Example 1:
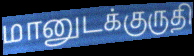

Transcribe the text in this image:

மானுடக்குருதி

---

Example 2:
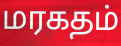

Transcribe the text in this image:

மரகதம்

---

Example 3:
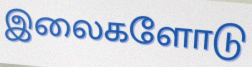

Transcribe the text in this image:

இலைகளோடு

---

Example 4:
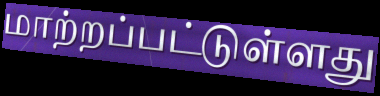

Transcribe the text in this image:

மாற்றப்பட்டுள்ளது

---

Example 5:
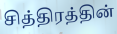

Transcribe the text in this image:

சித்திரத்தின்